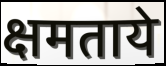
क्षमताये